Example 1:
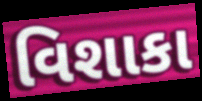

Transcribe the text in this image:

વિશાકા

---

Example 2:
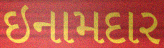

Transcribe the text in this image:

ઇનામદાર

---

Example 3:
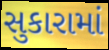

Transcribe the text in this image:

સુકારામાં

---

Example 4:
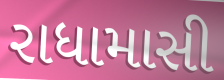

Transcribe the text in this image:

રાધામાસી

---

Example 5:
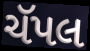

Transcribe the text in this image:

ચૅપલ